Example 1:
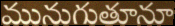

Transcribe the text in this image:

మునుగుతూనూ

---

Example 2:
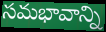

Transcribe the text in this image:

సమభావాన్ని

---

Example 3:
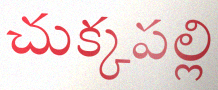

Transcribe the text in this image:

చుక్కపల్లి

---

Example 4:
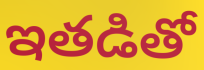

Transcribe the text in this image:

ఇతడితో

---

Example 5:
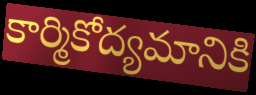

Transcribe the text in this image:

కార్మికోద్యమానికి